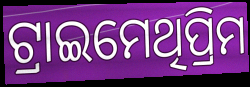
ଟ୍ରାଇମେଥିପ୍ରିମ